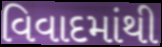
વિવાદમાંથી